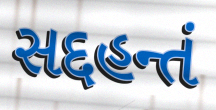
સદ્દહન્તં